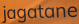
jagatane